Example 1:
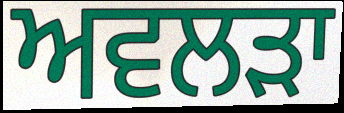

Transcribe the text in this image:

ਅਵਲੜਾ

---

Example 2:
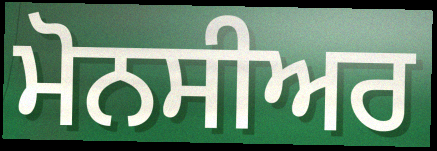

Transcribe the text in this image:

ਮੋਨਸੀਅਰ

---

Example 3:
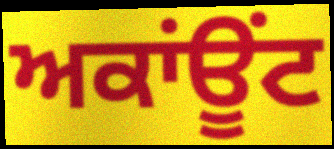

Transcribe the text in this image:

ਅਕਾਂਊਂਟ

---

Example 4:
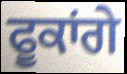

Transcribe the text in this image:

ਫੂਕਾਂਗੇ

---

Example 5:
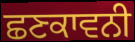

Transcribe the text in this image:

ਛਣਕਾਵਨੀ